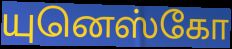
யுனெஸ்கோ